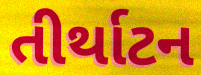
તીર્થાટન